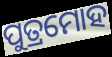
ପୁତ୍ରମୋହ